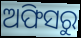
ଅଫିସରୁ